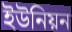
ইউনিয়ন